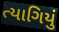
ત્યાગિયું